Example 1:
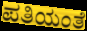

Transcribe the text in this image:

ಪತಿಯಂತೆ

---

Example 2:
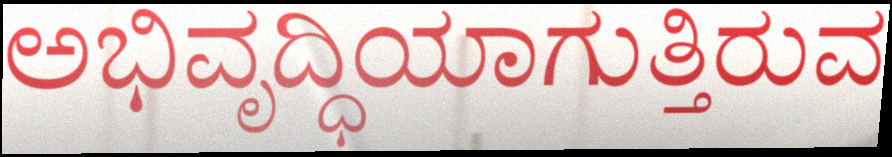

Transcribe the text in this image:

ಅಭಿವೃದ್ಧಿಯಾಗುತ್ತಿರುವ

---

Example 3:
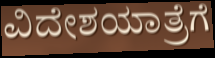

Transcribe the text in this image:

ವಿದೇಶಯಾತ್ರೆಗೆ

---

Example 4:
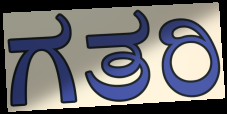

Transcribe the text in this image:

ಗತರಿ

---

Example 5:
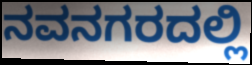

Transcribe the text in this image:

ನವನಗರದಲ್ಲಿ